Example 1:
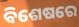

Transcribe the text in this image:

ବିଶେଷରେ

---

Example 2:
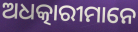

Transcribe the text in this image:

ଅଧତ୍କାରୀମାନେ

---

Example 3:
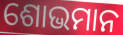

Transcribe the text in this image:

ଶୋଭମାନ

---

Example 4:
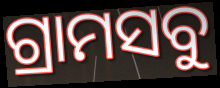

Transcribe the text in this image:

ଗ୍ରାମସବୁ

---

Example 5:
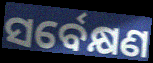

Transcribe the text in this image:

ସର୍ବେକ୍ଷଣ